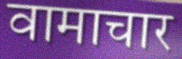
वामाचार